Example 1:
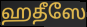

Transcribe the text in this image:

ஹதீஸே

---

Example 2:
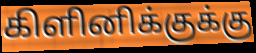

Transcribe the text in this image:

கிளினிக்குக்கு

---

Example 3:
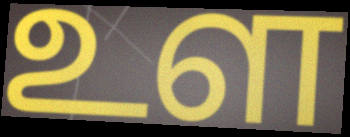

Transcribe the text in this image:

உள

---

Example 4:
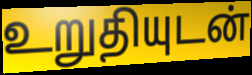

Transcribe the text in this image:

உறுதியுடன்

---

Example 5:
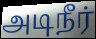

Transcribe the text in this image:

அடிநீர்